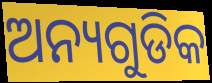
ଅନ୍ୟଗୁଡିକ